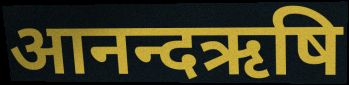
आनन्दऋषि